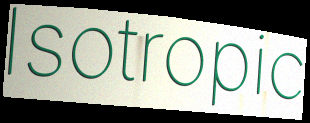
Isotropic